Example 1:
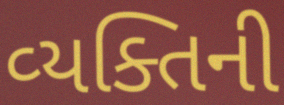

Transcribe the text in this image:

વ્‍યક્તિની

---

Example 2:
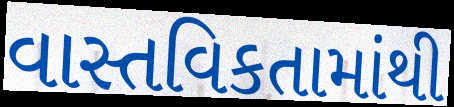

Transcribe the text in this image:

વાસ્તવિકતામાંથી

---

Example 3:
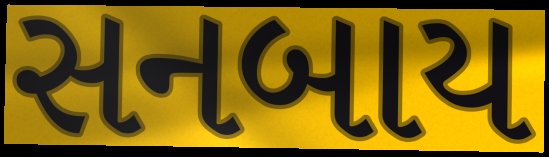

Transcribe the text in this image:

સનબાય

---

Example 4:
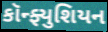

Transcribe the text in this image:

કૉન્ફ્યુશિયન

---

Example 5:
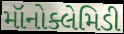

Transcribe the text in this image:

મૉનોક્લેમિડી